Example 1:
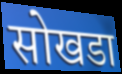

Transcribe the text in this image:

सोखडा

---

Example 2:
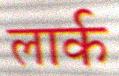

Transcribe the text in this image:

लार्क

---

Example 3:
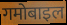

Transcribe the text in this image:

गमोबाइल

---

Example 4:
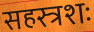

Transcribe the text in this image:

सहस्त्रशः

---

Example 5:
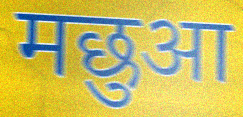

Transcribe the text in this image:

मछुआ